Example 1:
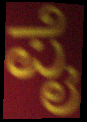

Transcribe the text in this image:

ಪೈ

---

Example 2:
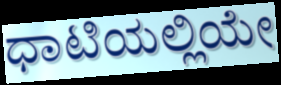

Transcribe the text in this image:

ಧಾಟಿಯಲ್ಲಿಯೇ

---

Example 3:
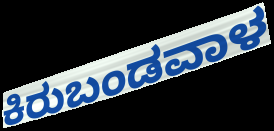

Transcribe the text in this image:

ಕಿರುಬಂಡವಾಳ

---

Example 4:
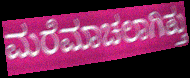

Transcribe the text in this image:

ಮರೆಮಾಚಲಾಗಿತ್ತು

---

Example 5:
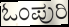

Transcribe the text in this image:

ಓಂಪುರಿ